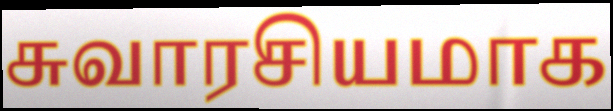
சுவாரசியமாக